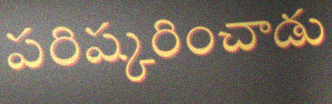
పరిష్కరించాడు